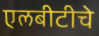
एलबीटीचे